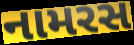
નામરસ